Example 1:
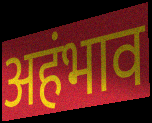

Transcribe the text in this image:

अहंभाव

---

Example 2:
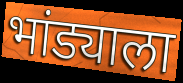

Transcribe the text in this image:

भांड्याला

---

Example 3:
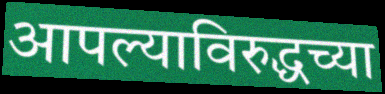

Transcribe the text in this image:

आपल्याविरुद्धच्या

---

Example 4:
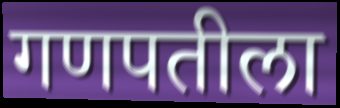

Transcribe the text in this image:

गणपतीला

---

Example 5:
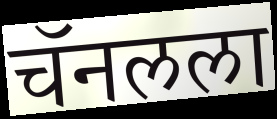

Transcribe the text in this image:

चॅनलला